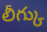
లీగ్కు